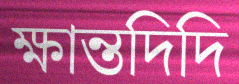
ক্ষান্তদিদি